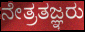
ನೇತ್ರತಜ್ಞರು